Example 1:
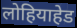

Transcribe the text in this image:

लोहियाहेड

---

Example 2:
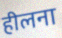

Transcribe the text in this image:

हीलना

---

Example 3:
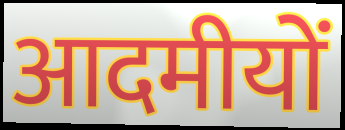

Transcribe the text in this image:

आदमीयों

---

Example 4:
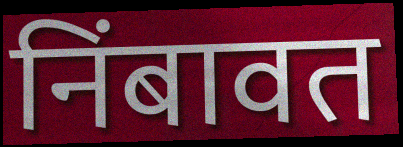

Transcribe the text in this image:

निंबावत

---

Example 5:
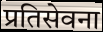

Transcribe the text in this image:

प्रतिसेवना